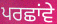
ਪਰਛਾਂਵੇ